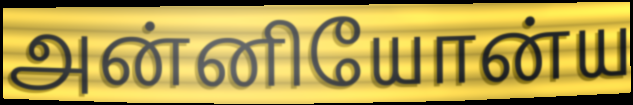
அன்னியோன்ய